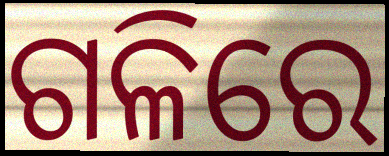
ଗଳିରେ